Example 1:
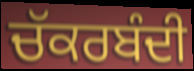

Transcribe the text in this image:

ਚੱਕਰਬੰਦੀ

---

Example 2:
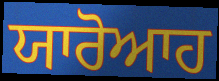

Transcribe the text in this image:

ਯਾਰੋਆਹ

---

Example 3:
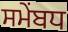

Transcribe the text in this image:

ਸਮੇਂਬਧ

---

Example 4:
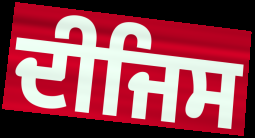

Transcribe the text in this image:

ਦੀਜਿਸ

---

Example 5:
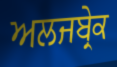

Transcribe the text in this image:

ਅਲਜਬ੍ਰੇਕ